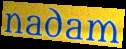
nadam